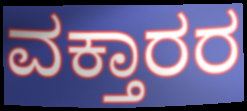
ವಕ್ತಾರರ